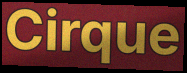
Cirque